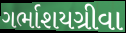
ગર્ભાશયગ્રીવા